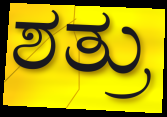
ಶತ್ರು